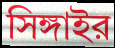
সিঙ্গাইর